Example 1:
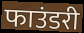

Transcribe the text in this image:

फाउंडरी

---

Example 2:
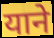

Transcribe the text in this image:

याने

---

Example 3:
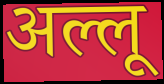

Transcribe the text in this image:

अल्लू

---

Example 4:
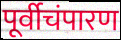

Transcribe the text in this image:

पूर्वीचंपारण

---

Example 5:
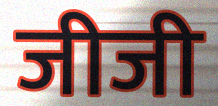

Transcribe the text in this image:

जीजी